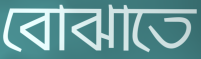
বোঝাতে